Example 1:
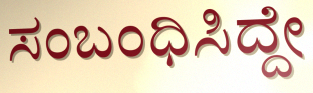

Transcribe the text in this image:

ಸಂಬಂಧಿಸಿದ್ದೇ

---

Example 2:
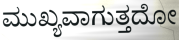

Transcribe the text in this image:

ಮುಖ್ಯವಾಗುತ್ತದೋ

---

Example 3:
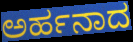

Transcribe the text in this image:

ಅರ್ಹನಾದ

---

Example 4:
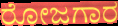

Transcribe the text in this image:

ರೋಜಗಾರ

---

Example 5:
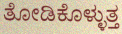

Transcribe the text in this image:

ತೋಡಿಕೊಳ್ಳುತ್ತ